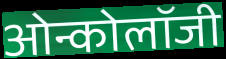
ओन्कोलॉजी